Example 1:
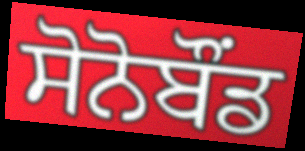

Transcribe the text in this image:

ਸੋਨੋਬੌਂਡ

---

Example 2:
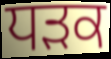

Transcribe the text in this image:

ਧੜਕ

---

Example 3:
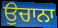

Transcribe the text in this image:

ਉਚਾਨਾ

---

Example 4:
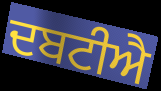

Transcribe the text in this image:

ਦਬਟੀਐ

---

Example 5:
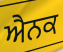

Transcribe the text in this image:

ਐਨਕ